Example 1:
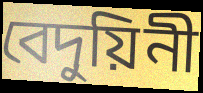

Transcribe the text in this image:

বেদুয়িনী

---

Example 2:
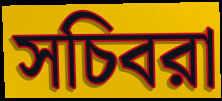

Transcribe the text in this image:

সচিবরা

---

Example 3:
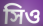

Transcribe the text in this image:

সিও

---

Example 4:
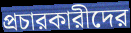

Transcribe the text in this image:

প্রচারকারীদের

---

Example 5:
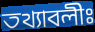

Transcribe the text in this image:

তথ্যাবলীঃ